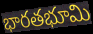
భారతభూమి